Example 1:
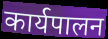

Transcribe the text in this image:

कार्यपालन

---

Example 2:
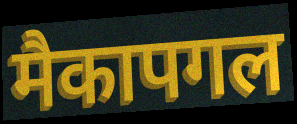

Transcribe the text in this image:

मैकापगल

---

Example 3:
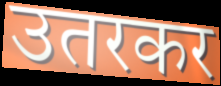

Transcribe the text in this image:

उतरकर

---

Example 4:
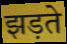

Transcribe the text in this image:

झड़ते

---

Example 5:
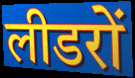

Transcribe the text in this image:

लीडरों